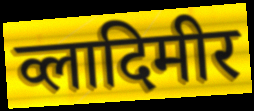
व्लादिमीर